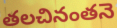
తలచినంతనె